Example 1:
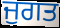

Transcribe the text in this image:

ਜੁਗਤ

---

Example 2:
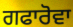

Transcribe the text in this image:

ਗਫਾਰੋਵਾ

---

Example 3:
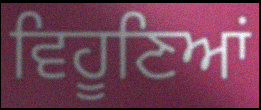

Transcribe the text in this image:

ਵਿਹੂਣਿਆਂ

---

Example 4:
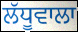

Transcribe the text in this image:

ਲੱਧੂਵਾਲਾ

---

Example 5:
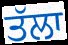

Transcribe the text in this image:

ਤੱਲਾ